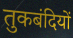
तुकबंदियों